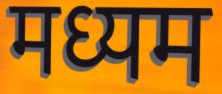
मध्यम